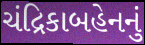
ચંદ્રિકાબહેનનું